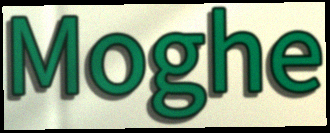
Moghe